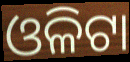
ଓଳିଟା